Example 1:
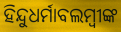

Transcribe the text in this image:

ହିନ୍ଦୁଧର୍ମାବଲମ୍ବୀଙ୍କ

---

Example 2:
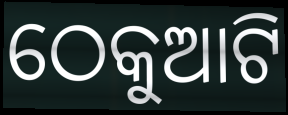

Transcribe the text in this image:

ଠେକୁଆଟି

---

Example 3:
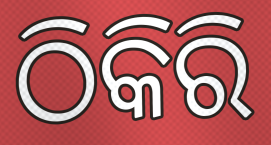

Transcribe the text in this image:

ଠିକିରି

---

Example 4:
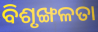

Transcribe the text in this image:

ବିଶୃଙ୍ଖଳତା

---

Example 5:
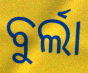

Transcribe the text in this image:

ବୁର୍ଲା